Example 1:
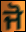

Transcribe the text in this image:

ਜੋ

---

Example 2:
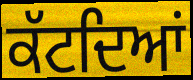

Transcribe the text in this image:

ਕੱਟਦਿਆਂ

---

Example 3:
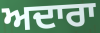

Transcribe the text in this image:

ਅਦਾਰਾ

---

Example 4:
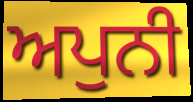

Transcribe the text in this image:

ਅਪੁਨੀ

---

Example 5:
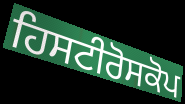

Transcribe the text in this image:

ਹਿਸਟੀਰੋਸਕੋਪ